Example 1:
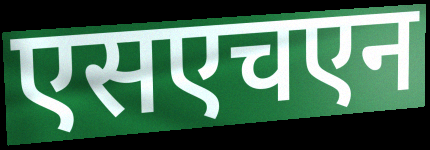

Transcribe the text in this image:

एसएचएन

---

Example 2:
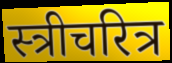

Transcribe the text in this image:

स्त्रीचरित्र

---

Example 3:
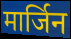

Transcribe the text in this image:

मार्जिन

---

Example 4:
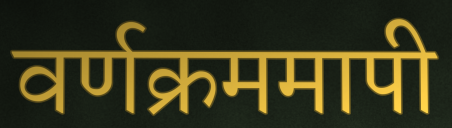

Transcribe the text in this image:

वर्णक्रममापी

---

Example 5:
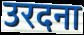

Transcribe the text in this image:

उरदना